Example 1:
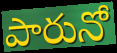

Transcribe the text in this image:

పారునో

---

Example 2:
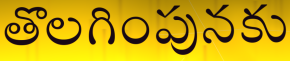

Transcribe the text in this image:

తొలగింపునకు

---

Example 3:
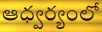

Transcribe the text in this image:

ఆధ్వర్యంలో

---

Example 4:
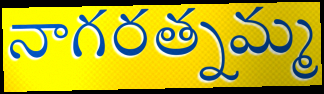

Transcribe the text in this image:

నాగరత్నమ్మ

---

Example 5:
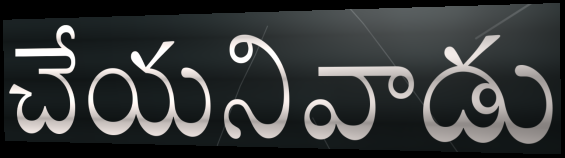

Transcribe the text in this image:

చేయనివాడు